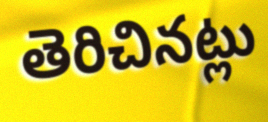
తెరిచినట్లు